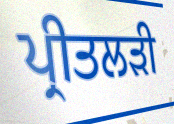
ਪ੍ਰੀਤਲੜੀ